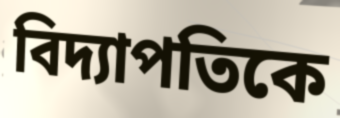
বিদ্যাপতিকে